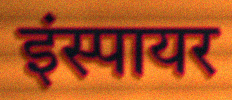
इंस्पायर